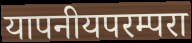
यापनीयपरम्परा